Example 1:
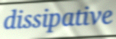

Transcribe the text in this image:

dissipative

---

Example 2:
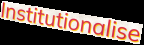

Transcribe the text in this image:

Institutionalise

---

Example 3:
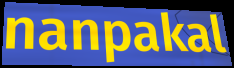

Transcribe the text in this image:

nanpakal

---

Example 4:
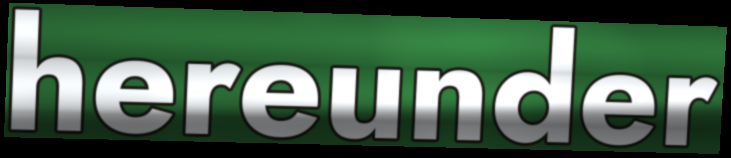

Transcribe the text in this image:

hereunder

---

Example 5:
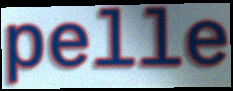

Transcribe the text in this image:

pelle